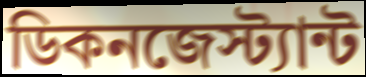
ডিকনজেস্ট্যান্ট